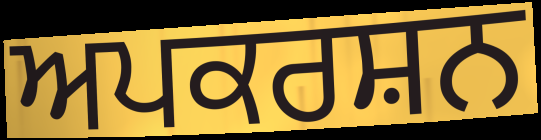
ਅਪਕਰਸ਼ਨ